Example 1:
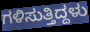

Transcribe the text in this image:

ಗಳಿಸುತ್ತಿದ್ದಳು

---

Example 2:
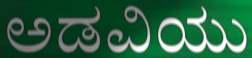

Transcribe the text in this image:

ಅಡವಿಯು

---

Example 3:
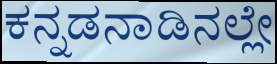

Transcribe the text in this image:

ಕನ್ನಡನಾಡಿನಲ್ಲೇ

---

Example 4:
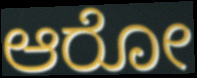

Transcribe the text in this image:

ಆರೋ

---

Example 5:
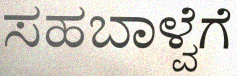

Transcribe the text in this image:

ಸಹಬಾಳ್ವೆಗೆ